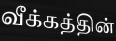
வீக்கத்தின்